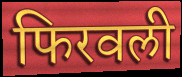
फिरवली